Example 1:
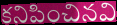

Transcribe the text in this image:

కనిపించినవి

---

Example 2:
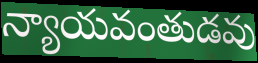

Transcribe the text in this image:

న్యాయవంతుడవు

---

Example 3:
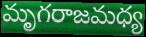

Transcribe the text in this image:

మృగరాజమధ్య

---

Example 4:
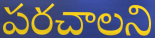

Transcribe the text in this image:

పరచాలని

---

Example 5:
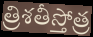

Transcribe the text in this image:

త్రిశతీస్తోత్ర